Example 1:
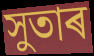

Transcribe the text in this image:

সুতাৰ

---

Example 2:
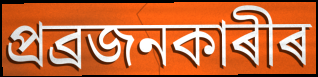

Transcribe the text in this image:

প্ৰব্ৰজনকাৰীৰ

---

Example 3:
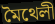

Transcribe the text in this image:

মৈথেলী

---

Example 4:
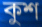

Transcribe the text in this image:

কুশ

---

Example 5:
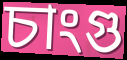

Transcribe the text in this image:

চাংগু